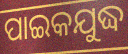
ପାଇକଯୁଦ୍ଧ